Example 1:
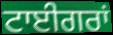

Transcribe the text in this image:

ਟਾਈਗਰਾਂ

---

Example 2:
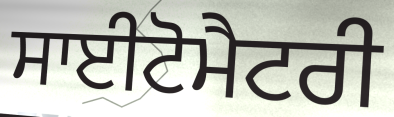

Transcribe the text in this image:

ਸਾਈਟੋਮੈਟਰੀ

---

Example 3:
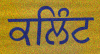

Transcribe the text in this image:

ਕਲਿੰਟ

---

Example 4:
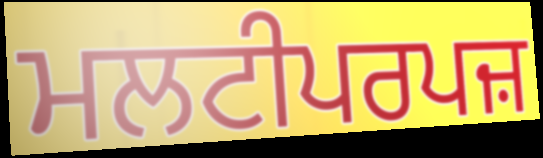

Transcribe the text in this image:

ਮਲਟੀਪਰਪਜ਼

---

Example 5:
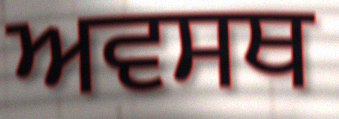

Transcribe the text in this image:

ਅਵਸਥ